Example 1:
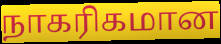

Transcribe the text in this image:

நாகரிகமான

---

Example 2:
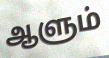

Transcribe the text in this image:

ஆளும்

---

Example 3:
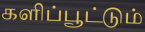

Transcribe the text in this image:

களிப்பூட்டும்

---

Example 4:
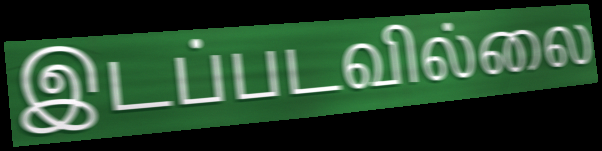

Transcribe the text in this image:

இடப்படவில்லை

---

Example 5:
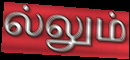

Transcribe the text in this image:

ல்லும்